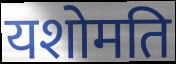
यशोमति